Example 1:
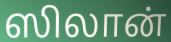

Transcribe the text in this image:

ஸிலான்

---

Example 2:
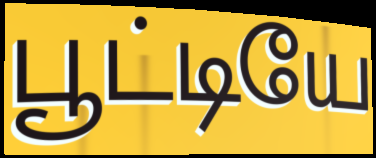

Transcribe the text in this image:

பூட்டியே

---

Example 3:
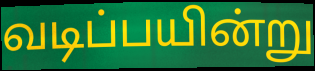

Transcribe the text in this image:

வடிப்பயின்று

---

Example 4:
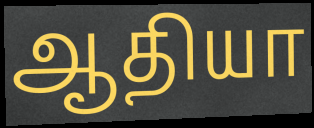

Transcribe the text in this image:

ஆதியா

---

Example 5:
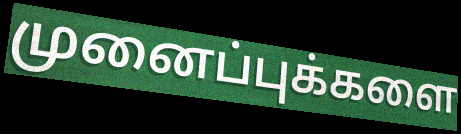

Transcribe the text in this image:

முனைப்புக்களை